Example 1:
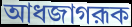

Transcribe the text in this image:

আধজাগরূক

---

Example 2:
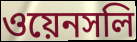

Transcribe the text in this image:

ওয়েনসলি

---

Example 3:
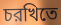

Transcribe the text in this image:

চরখিতে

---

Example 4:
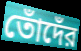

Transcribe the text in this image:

তোঁদেঁর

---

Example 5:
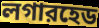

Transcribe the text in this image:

লগারহেড